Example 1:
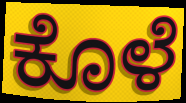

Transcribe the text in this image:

ಕೊಳೆ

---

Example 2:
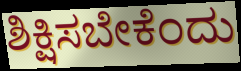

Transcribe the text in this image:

ಶಿಕ್ಷಿಸಬೇಕೆಂದು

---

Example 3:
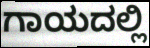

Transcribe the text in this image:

ಗಾಯದಲ್ಲಿ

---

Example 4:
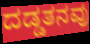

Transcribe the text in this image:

ದಡ್ಡತನವು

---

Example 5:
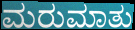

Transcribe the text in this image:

ಮರುಮಾತು